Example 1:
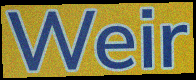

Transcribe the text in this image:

Weir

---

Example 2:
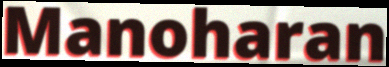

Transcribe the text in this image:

Manoharan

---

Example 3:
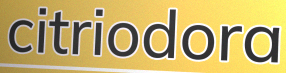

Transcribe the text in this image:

citriodora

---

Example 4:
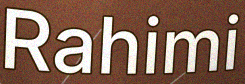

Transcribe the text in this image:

Rahimi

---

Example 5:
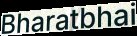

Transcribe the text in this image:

Bharatbhai